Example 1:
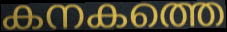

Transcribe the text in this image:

കനകത്തെ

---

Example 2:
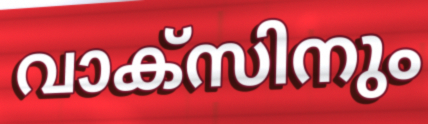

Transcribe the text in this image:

വാക്സിനും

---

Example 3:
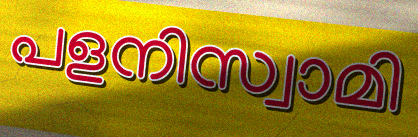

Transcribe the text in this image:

പളനിസ്വാമി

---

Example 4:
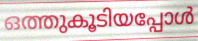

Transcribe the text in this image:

ഒത്തുകൂടിയപ്പോൾ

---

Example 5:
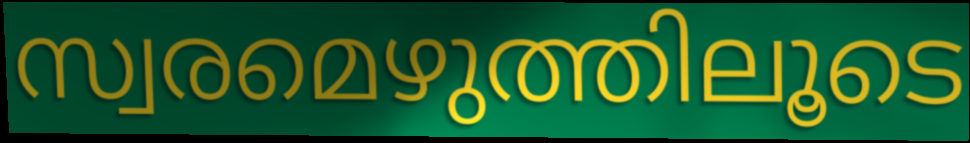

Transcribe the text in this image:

സ്വരമെഴുത്തിലൂടെ